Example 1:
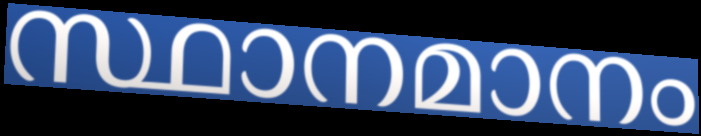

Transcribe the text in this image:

സ്ഥാനമാനം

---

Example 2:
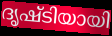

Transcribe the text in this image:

ദൃഷ്ടിയായി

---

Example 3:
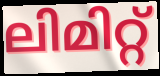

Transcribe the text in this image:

ലിമിറ്റ്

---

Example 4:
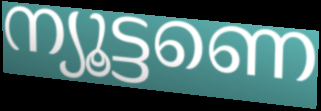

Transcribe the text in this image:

ന്യൂട്ടണെ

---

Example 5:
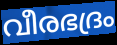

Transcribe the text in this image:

വീരഭദ്രം